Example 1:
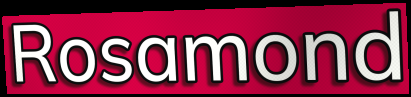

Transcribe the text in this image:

Rosamond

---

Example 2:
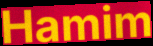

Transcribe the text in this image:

Hamim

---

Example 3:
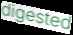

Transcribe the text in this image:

digested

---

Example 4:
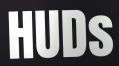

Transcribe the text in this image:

HUDs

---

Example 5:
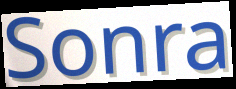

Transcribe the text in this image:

Sonra